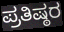
ಪ್ರತಿಷ್ಠರ